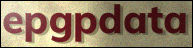
epgpdata